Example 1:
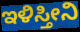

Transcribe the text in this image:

ಇಳಿಸ್ತೀನಿ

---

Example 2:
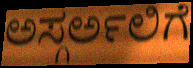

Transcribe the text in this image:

ಅಸ್ಗರ್ಅಲಿಗೆ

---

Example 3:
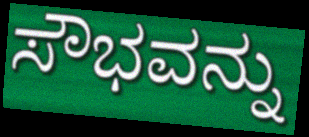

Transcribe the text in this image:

ಸೌಭವನ್ನು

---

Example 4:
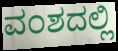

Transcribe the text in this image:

ವಂಶದಲ್ಲಿ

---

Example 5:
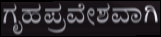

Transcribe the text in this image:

ಗೃಹಪ್ರವೇಶವಾಗಿ